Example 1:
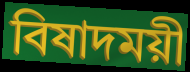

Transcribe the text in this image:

বিষাদময়ী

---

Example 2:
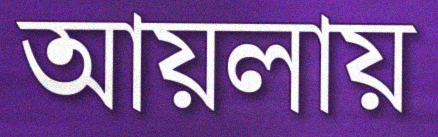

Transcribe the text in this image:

আয়লায়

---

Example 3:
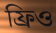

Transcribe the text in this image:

ফ্রিও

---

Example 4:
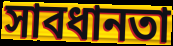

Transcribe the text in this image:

সাবধানতা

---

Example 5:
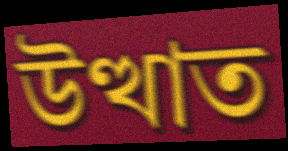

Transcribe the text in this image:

উত্থাত